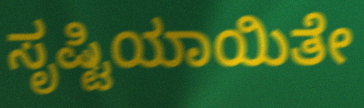
ಸೃಷ್ಟಿಯಾಯಿತೇ